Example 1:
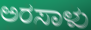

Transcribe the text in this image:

ಅರಸಾಳು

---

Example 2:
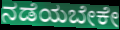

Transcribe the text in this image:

ನಡೆಯಬೇಕೇ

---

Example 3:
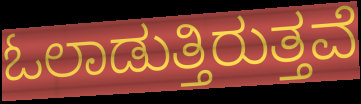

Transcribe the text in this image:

ಓಲಾಡುತ್ತಿರುತ್ತವೆ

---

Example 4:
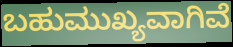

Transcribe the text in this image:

ಬಹುಮುಖ್ಯವಾಗಿವೆ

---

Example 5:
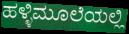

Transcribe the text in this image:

ಹಳ್ಳಿಮೂಲೆಯಲ್ಲಿ